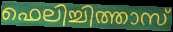
ഫെലിച്ചിത്താസ്